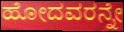
ಹೋದವರನ್ನೇ